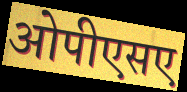
ओपीएसए